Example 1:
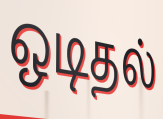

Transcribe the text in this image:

ஒடிதல்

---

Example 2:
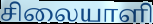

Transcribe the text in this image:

சிலையாளி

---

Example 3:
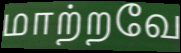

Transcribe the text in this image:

மாற்றவே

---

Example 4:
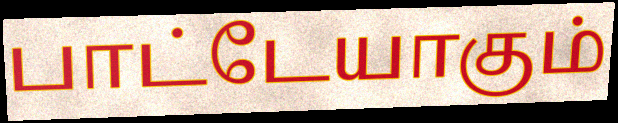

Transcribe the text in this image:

பாட்டேயாகும்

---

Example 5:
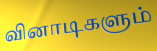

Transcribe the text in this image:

வினாடிகளும்